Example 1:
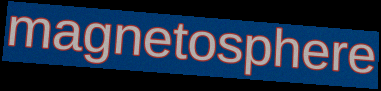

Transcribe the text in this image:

magnetosphere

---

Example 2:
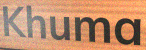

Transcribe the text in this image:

Khuma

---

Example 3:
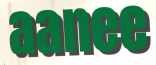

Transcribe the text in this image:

aanee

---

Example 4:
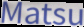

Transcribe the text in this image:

Matsu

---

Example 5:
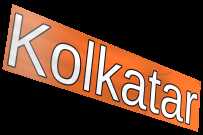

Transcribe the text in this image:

Kolkatar